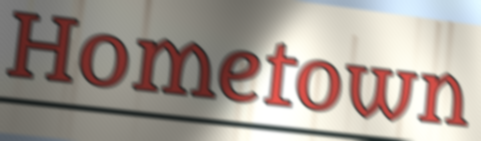
Hometown